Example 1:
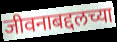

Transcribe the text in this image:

जीवनाबद्दलच्या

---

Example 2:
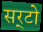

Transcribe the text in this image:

सर्टो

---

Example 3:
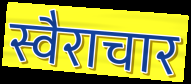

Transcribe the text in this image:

स्वैराचार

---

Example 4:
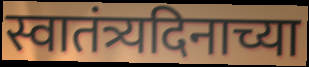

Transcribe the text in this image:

स्वातंत्र्यदिनाच्या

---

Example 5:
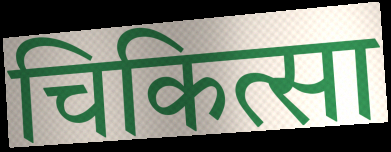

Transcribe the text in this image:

चिकित्सा